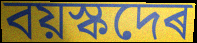
বয়স্কদেৰ